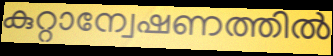
കുറ്റാന്വേഷണത്തിൽ